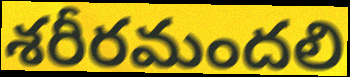
శరీరమందలి